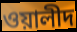
ওয়ালীদ